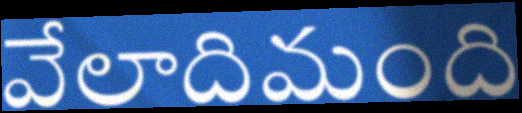
వేలాదిమంది